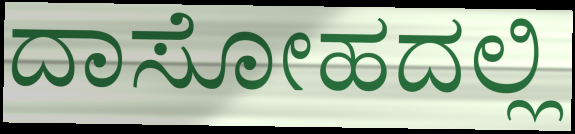
ದಾಸೋಹದಲ್ಲಿ